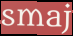
smaj